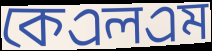
কেএলএম